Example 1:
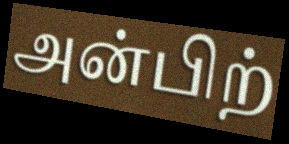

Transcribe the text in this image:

அன்பிற்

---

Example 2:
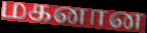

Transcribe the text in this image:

மகனான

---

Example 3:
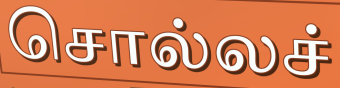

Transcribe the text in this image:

சொல்லச்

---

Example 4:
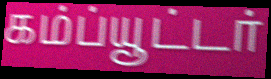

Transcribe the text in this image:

கம்ப்யூட்டர்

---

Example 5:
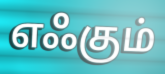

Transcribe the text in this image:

எஃகும்